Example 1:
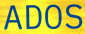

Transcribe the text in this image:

ADOS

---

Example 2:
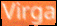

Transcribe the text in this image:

Virga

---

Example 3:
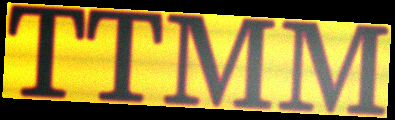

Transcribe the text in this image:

TTMM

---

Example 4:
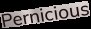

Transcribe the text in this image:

Pernicious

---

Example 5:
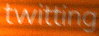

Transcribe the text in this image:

twitting